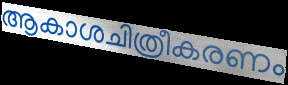
ആകാശചിത്രീകരണം